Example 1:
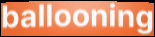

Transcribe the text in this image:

ballooning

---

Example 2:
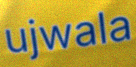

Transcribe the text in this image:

ujwala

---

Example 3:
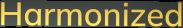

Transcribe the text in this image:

Harmonized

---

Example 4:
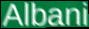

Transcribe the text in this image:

Albani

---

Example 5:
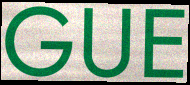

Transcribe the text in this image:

GUE